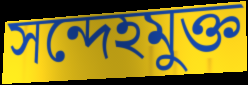
সন্দেহমুক্ত